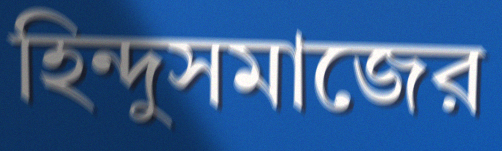
হিন্দুসমাজের